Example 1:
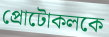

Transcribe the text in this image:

প্রোটোকলকে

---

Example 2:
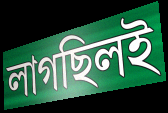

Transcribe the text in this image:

লাগছিলই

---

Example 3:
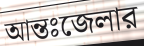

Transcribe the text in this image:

আন্তঃজেলার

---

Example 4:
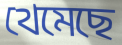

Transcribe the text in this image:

থেমেছে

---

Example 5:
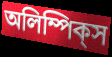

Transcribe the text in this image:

অলিম্পিক্‌স